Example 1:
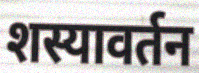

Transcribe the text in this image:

शस्यावर्तन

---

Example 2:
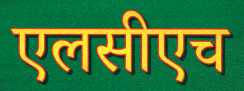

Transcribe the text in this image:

एलसीएच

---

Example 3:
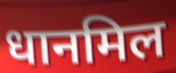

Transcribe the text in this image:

धानमिल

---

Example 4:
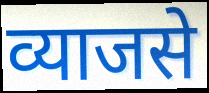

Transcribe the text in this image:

व्याजसे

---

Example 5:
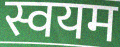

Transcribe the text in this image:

स्वयम